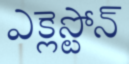
ఎక్లెస్టోన్